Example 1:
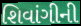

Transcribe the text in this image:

શિવાંગીની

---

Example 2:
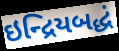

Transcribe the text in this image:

ઇન્દ્રિયબદ્ધં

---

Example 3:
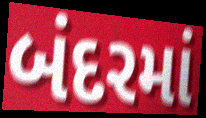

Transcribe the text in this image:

બંદરમાં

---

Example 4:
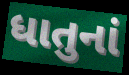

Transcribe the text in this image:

ધાતુનાં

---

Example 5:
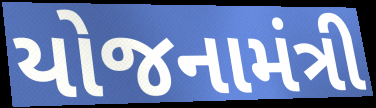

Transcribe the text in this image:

યોજનામંત્રી